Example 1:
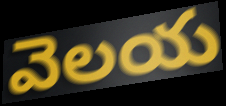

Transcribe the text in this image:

వెలయ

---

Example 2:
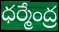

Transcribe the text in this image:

ధర్మేంద్ర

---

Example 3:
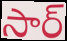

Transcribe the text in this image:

సార్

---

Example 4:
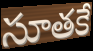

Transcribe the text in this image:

సూతకే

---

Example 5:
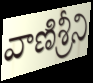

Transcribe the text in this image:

వాణిశ్రీని